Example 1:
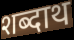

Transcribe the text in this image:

शब्दाथ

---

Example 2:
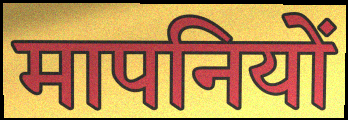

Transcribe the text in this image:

मापनियों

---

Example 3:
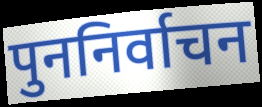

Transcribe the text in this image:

पुननिर्वाचन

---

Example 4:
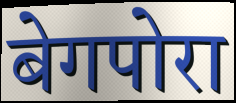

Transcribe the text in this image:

बेगपोरा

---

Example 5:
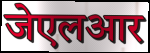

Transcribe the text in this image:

जेएलआर